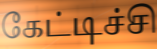
கேட்டிச்சி